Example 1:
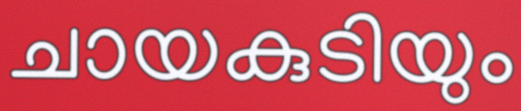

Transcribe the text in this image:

ചായകുടിയും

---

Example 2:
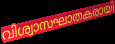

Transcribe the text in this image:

വിശ്വാസഘാതകരായി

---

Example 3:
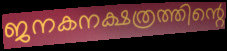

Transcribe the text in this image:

ജനകനക്ഷത്രത്തിന്റെ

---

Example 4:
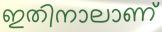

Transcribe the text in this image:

ഇതിനാലാണ്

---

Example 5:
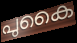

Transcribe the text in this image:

പുകൈ